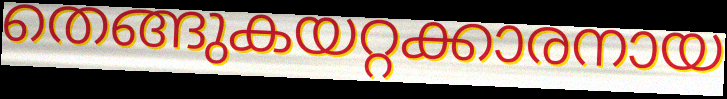
തെങ്ങുകയറ്റക്കാരനായ